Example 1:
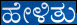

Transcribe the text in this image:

ಹೇಳಿತು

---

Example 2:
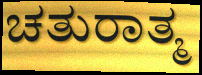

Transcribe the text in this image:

ಚತುರಾತ್ಮ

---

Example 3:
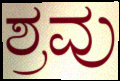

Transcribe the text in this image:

ಶ್ರವು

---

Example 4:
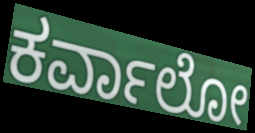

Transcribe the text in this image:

ಕರ್ವಾಲೋ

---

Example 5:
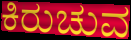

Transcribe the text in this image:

ಕಿರುಚುವ